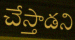
చేస్తాడని